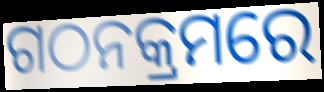
ଗଠନକ୍ରମରେ